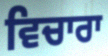
ਵਿਚਾਰਾ